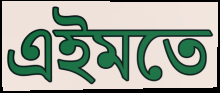
এইমতে